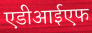
एडीआईएफ